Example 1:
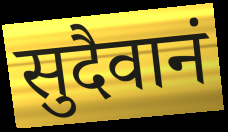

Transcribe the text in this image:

सुदैवानं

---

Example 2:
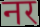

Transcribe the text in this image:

नर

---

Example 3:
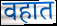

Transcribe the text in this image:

वहात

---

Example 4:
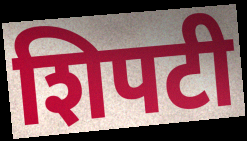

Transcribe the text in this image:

शिपटी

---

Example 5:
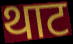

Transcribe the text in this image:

थाट